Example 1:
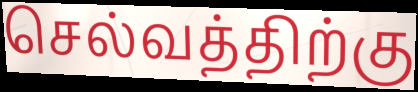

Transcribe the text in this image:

செல்வத்திற்கு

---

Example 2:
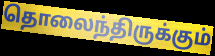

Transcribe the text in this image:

தொலைந்திருக்கும்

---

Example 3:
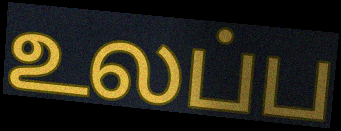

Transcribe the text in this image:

உலப்ப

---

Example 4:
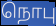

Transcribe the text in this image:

நொபு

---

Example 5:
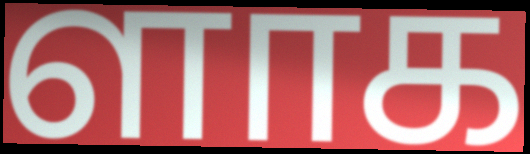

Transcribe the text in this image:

ளாக